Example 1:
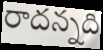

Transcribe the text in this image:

రాదన్నది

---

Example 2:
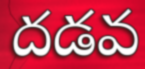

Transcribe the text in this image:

దడవ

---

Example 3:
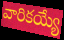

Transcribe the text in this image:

వారికయ్యే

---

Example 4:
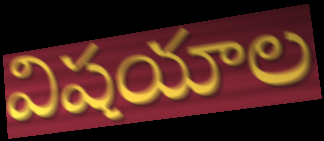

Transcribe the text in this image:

విషయాల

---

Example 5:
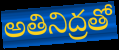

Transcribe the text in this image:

అతినిద్రతో